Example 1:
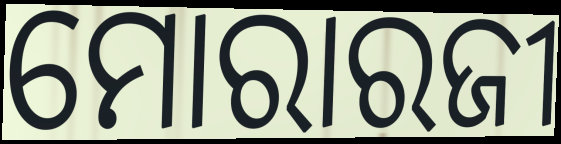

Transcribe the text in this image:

ମୋରାରଜୀ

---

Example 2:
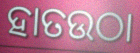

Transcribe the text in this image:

ହାତଉଠା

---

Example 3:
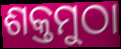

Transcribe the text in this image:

ଶକ୍ତମୁଠା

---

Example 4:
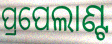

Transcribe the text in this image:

ପ୍ରପେଲାଣ୍ଟ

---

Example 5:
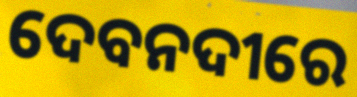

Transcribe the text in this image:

ଦେବନଦୀରେ